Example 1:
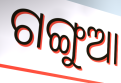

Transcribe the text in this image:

ଗଙ୍ଗୁଆ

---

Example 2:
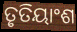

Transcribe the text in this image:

ତୃତିୟାଂଶ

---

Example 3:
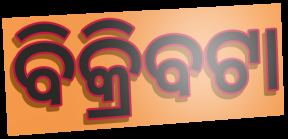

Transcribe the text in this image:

ବିକ୍ରିବଟା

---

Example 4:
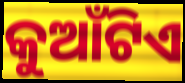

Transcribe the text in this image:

କୁଆଁଟିଏ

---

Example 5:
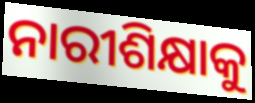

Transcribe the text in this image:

ନାରୀଶିକ୍ଷାକୁ